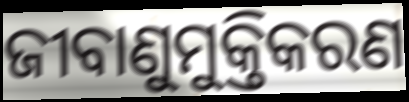
ଜୀବାଣୁମୁକ୍ତିକରଣ